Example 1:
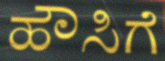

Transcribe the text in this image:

ಹೌಸಿಗೆ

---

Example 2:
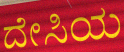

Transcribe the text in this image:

ದೇಸಿಯ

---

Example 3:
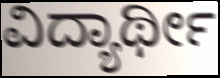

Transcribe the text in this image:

ವಿದ್ಯಾರ್ಥೀ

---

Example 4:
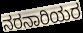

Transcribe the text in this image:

ನರನಾರಿಯರ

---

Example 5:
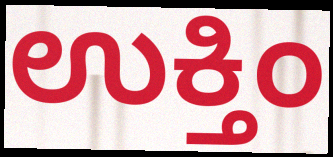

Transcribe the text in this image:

ಉಕ್ತಿಂ